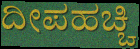
ದೀಪಹಚ್ಚಿ